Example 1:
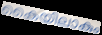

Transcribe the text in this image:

കൈയിലാകും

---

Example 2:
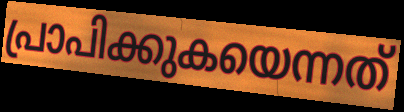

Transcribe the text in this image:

പ്രാപിക്കുകയെന്നത്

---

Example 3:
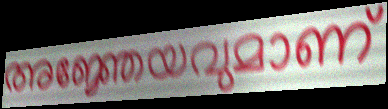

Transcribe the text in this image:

അജ്ഞേയവുമാണ്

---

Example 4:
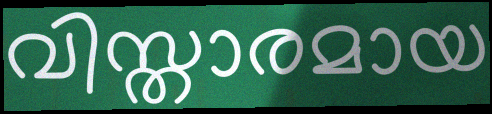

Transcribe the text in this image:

വിസ്താരമായ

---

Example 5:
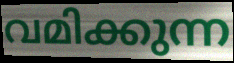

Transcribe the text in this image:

വമിക്കുന്ന